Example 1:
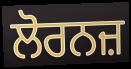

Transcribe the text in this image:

ਲੋਰਨਜ਼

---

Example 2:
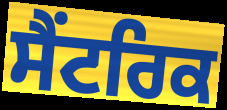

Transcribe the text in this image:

ਸੈਂਟਰਿਕ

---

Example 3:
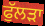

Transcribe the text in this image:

ਫੁੱਲੜਾ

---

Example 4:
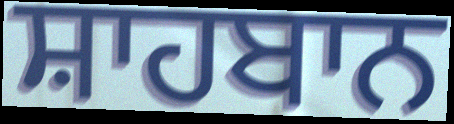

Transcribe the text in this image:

ਸ਼ਾਹਬਾਨ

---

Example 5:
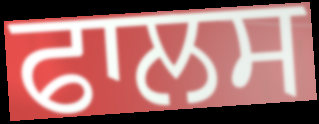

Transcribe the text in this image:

ਫਾਲਸ